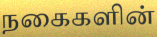
நகைகளின்